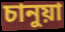
চানুয়া